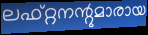
ലഫ്റ്റനന്റുമാരായ